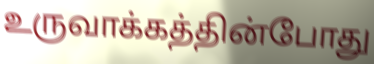
உருவாக்கத்தின்போது